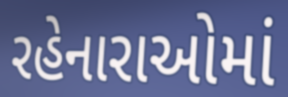
રહેનારાઓમાં